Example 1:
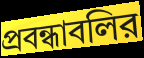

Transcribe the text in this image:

প্রবন্ধাবলির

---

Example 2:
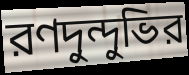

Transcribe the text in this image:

রণদুন্দুভির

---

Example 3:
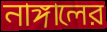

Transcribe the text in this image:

নাঙ্গালের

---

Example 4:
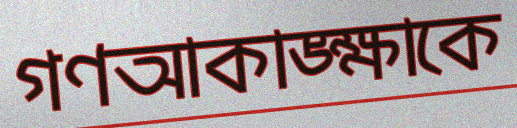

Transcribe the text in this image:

গণআকাঙ্ক্ষাকে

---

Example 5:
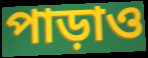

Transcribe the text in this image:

পাড়াও